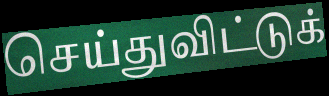
செய்துவிட்டுக்